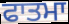
ਫਾਤਮਾ